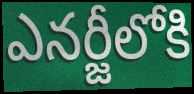
ఎనర్జీలోకి